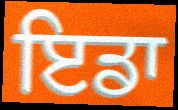
ਇਡਾ